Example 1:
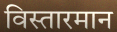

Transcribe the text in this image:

विस्तारमान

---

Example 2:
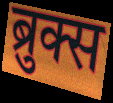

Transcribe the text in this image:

ब्रुक्‍स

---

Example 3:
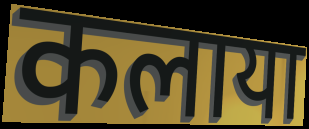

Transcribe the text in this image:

कलाया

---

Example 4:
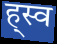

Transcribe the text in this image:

ह्स्व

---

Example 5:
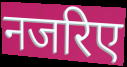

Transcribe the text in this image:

नजरिए